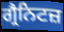
ਗ੍ਰੈਨਿਟਜ਼